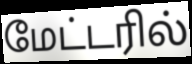
மேட்டரில்